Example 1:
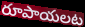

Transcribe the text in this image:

రూపాయలట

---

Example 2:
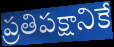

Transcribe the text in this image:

ప్రతిపక్షానికే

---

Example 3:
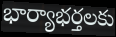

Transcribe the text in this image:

భార్యాభర్తలకు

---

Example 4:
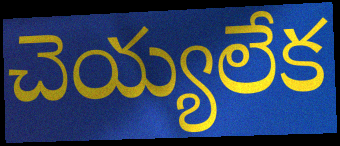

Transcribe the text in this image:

చెయ్యలేక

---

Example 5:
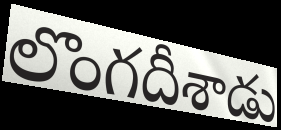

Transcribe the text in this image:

లొంగదీశాడు